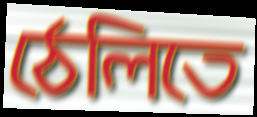
ঠেলিতে